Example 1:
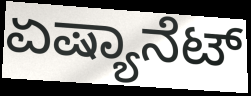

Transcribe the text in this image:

ಏಷ್ಯಾನೆಟ್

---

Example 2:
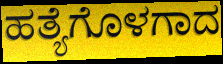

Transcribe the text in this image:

ಹತ್ಯೆಗೊಳಗಾದ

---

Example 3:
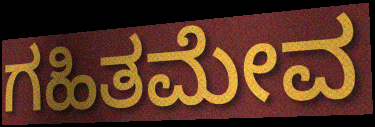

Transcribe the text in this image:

ಗಹಿತಮೇವ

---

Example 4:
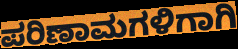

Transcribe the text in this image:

ಪರಿಣಾಮಗಳಿಗಾಗಿ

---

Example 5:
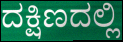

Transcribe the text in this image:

ದಕ್ಷಿಣದಲ್ಲಿ